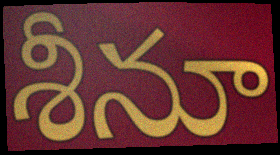
శీనూ